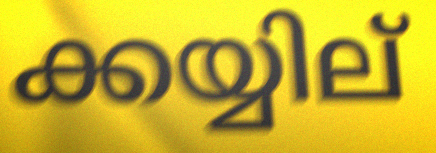
ക്കയ്യില്